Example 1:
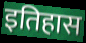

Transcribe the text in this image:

इतिहास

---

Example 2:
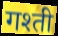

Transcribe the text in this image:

गश्ती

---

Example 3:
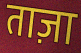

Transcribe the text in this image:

ताज़ा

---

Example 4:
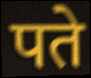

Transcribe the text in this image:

पते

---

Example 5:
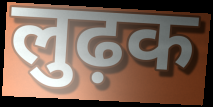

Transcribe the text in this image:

लुढ़क